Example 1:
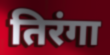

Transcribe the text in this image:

तिरंगा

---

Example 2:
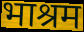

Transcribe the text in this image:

भाश्रम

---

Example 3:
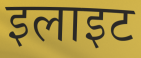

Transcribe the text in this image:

इलाइट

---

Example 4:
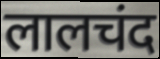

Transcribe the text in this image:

लालचंद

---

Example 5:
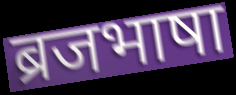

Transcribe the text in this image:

ब्रजभाषा